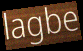
lagbe